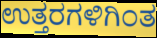
ಉತ್ತರಗಳಿಗಿಂತ